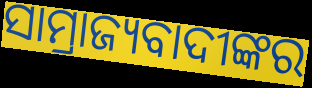
ସାମ୍ରାଜ୍ୟବାଦୀଙ୍କର